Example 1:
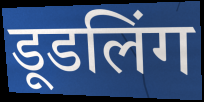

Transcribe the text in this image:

डूडलिंग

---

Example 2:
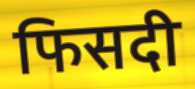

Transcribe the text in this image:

फिसदी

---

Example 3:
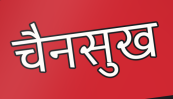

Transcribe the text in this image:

चैनसुख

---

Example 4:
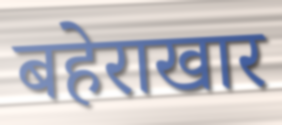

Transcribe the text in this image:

बहेराखार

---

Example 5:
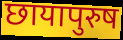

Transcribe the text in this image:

छायापुरुष